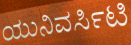
ಯುನಿವರ್ಸಿಟಿ